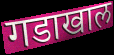
गडाखाल